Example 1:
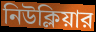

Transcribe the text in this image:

নিউক্লিয়ার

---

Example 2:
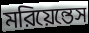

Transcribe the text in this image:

মরিয়েন্তেস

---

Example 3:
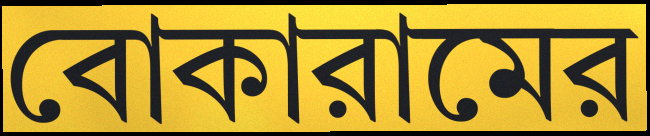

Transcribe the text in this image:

বোকারামের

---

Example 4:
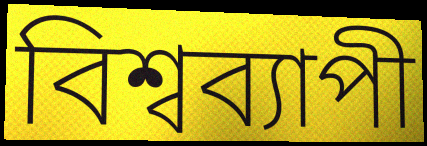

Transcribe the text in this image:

বিশ্বব্যাপী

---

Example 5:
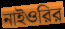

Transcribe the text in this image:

নাইওরির